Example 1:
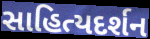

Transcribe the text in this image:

સાહિત્યદર્શન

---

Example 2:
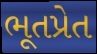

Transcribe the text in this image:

ભૂતપ્રેત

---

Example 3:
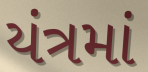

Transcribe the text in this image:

યંત્રમાં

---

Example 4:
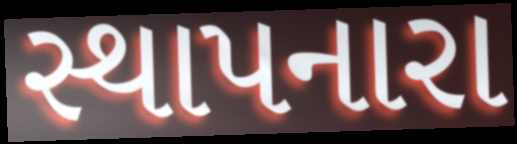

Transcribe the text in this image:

સ્થાપનારા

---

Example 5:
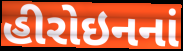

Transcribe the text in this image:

હીરોઇનનાં